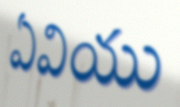
ఏవియు